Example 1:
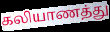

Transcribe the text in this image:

கலியாணத்து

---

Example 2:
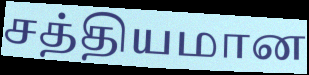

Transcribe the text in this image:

சத்தியமான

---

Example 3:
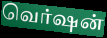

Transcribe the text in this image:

வெர்ஷன்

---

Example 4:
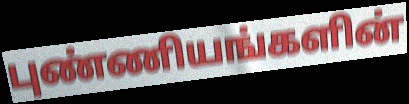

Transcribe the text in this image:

புண்ணியங்களின்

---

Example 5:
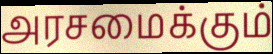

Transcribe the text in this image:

அரசமைக்கும்